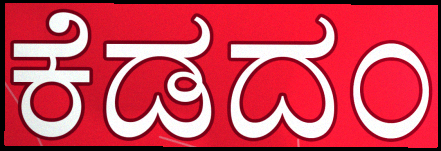
ಕೆಡದಂ